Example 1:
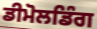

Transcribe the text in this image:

ਡੀਮੋਲਡਿੰਗ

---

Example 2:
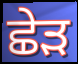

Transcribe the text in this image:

ਛੇੜ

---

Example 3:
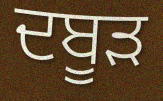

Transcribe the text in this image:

ਦਬੂੜ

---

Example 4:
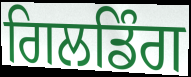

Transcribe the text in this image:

ਗਿਲਡਿੰਗ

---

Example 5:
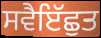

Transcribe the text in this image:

ਸਵੈਇੱਛੁਤ